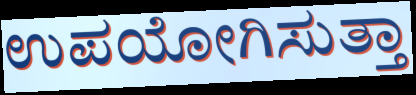
ಉಪಯೋಗಿಸುತ್ತಾ